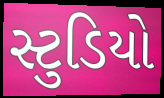
સ્ટુડિયો